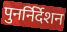
पुनर्निर्देशन